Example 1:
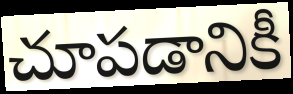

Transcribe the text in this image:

చూపడానికీ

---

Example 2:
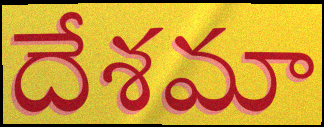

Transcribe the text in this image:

దేశమా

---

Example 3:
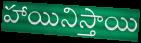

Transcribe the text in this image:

హాయినిస్తాయి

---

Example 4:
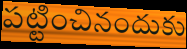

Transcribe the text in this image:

పట్టించినందుకు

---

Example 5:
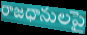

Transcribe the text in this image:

రాజధానులపై